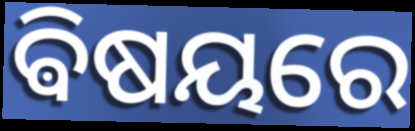
ଵିଷୟରେ